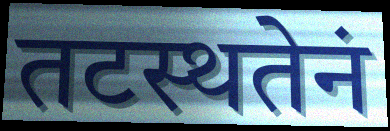
तटस्थतेनं